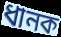
ধানক